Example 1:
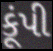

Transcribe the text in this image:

કૂંપી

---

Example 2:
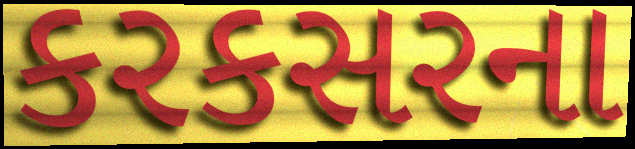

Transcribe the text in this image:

કરકસરના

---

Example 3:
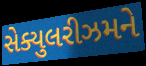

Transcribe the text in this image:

સેક્યુલરીઝમને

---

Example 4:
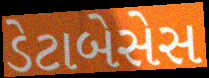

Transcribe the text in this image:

ડેટાબેસેસ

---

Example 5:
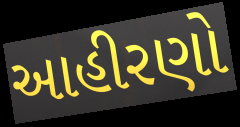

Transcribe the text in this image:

આહીરણો